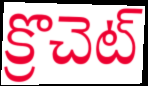
క్రొచెట్